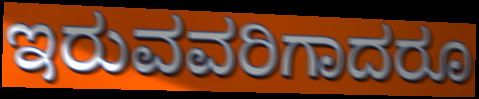
ಇರುವವರಿಗಾದರೂ